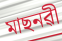
মাছনৱী